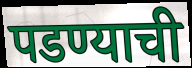
पडण्याची